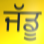
ਜੱਡੂ